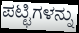
ಪಟ್ಟಿಗಳನ್ನು